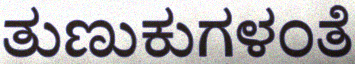
ತುಣುಕುಗಳಂತೆ